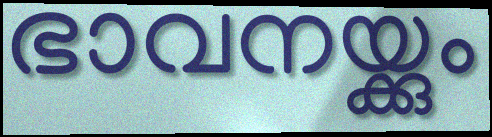
ഭാവനയ്ക്കും